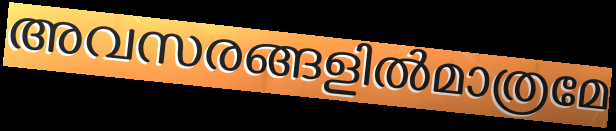
അവസരങ്ങളിൽമാത്രമേ